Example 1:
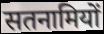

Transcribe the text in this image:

सतनामियों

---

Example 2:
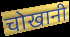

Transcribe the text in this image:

चोखानी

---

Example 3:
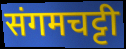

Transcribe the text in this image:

संगमचट्टी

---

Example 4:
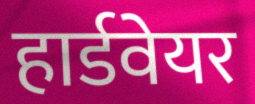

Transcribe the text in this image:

हार्डवेयर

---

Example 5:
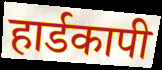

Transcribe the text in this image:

हार्डकापी